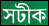
সটীক